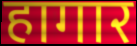
हागार